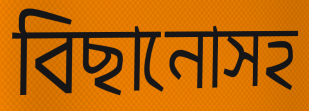
বিছানোসহ